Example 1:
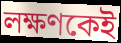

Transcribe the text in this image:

লক্ষণকেই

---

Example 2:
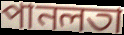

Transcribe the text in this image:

পানলতা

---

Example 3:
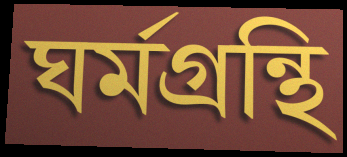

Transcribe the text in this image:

ঘর্মগ্রন্থি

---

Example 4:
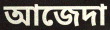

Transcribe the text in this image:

আজেদা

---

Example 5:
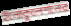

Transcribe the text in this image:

ইনোকুলেশনের